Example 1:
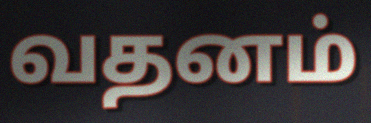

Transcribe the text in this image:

வதனம்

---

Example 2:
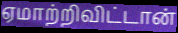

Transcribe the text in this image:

ஏமாற்றிவிட்டான்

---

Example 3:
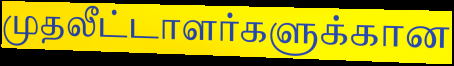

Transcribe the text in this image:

முதலீட்டாளர்களுக்கான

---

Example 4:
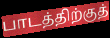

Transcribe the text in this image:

பாடத்திற்குத்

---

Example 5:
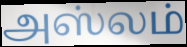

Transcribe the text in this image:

அஸ்லம்